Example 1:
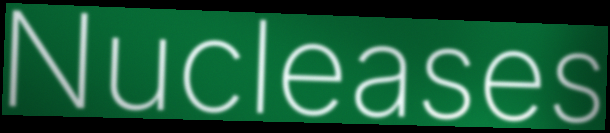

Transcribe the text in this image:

Nucleases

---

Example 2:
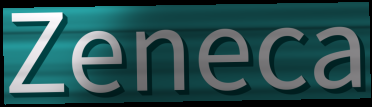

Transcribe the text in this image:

Zeneca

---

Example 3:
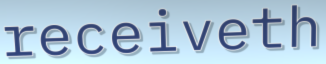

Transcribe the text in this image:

receiveth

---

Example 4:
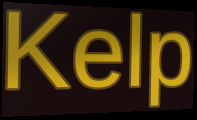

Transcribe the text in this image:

Kelp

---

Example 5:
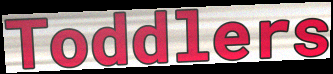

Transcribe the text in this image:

Toddlers